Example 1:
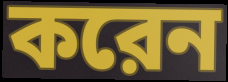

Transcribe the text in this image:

করেন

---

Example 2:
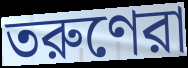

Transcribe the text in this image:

তরুণেরা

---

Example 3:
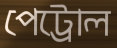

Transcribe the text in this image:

পেট্রোল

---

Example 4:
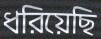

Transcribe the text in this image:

ধরিয়েছি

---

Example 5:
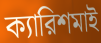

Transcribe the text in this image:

ক্যারিশমাই